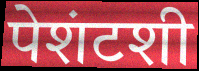
पेशंटशी